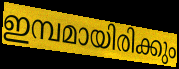
ഇമ്പമായിരിക്കും